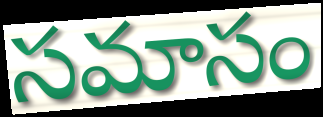
సమాసం